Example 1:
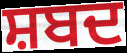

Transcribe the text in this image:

ਸ਼ਬਦ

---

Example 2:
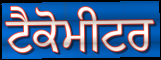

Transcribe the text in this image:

ਟੈਕੋਮੀਟਰ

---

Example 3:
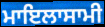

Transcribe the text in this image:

ਮਾਇਲਾਸਾਮੀ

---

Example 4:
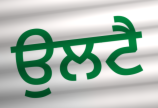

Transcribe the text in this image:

ਉਲਟੈ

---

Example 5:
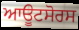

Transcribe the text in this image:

ਆਊਟਸੋਰਸ